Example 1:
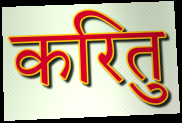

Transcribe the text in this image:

करितु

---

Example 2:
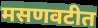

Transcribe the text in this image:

मसणवटीत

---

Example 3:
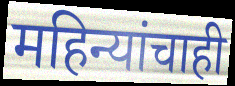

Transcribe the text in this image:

महिन्यांचाही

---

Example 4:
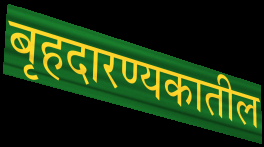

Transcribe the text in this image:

बृहदारण्यकातील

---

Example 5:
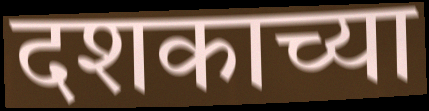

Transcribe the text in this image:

दशकाच्या